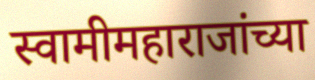
स्वामीमहाराजांच्या